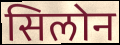
सिलोन